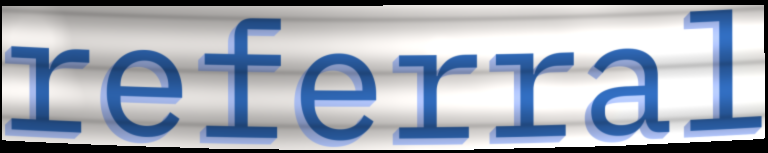
referral